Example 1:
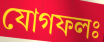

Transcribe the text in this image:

যোগফলঃ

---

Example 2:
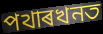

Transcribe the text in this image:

পথাৰখনত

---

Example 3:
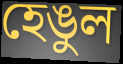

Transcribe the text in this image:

হেঙুল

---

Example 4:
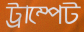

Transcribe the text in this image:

ট্ৰাম্পেট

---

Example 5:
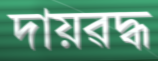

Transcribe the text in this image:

দায়ৱদ্ধ